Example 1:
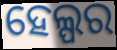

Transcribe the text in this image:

ହେଲ୍ପର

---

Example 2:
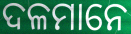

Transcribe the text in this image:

ଦଳମାନେ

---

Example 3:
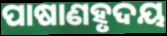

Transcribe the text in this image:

ପାଷାଣହୃଦୟ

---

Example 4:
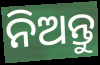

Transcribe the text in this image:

ନିଅନ୍ତୁ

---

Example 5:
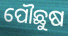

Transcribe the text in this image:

ପୌଛୁଷ